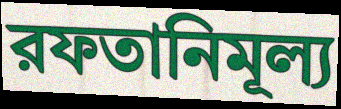
রফতানিমূল্য